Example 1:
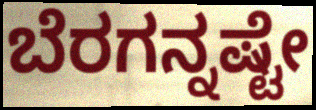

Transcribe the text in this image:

ಬೆರಗನ್ನಷ್ಟೇ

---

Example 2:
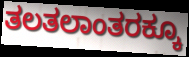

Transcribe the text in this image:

ತಲತಲಾಂತರಕ್ಕೂ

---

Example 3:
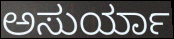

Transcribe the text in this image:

ಅಸುರ್ಯಾ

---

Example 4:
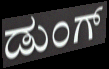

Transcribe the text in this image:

ಡುಂಗ್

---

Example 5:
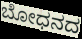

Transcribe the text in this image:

ಬೋಧನದ